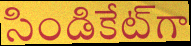
సిండికేట్‌గా